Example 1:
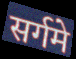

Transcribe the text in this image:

सर्गमे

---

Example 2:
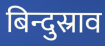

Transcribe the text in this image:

बिन्दुस्राव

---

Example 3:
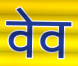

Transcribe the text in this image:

वेव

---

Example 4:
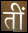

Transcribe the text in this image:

तीं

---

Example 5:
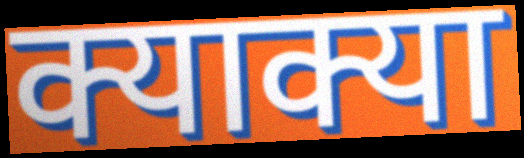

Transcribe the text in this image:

क्याक्या